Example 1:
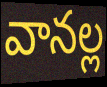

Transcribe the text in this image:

వానల్ల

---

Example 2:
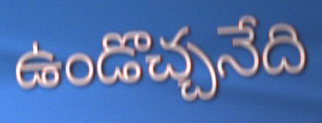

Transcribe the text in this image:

ఉండొచ్చనేది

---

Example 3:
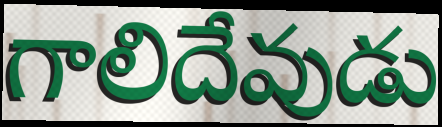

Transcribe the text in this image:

గాలిదేవుడు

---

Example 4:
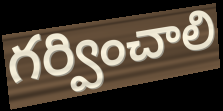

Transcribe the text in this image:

గర్వించాలి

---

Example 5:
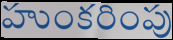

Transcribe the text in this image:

హుంకరింపు